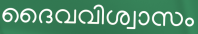
ദൈവവിശ്വാസം